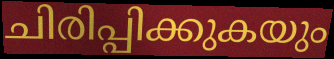
ചിരിപ്പിക്കുകയും